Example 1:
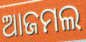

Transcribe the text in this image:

ଆଜମଲ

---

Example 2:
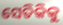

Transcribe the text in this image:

ସେତିକିକୁ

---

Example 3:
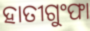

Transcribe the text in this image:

ହାତୀଗୁଂଫା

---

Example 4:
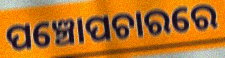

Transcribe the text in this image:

ପଞ୍ଚୋପଚାରରେ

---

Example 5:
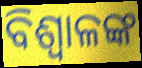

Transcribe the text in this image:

ବିଶ୍ୱାଳଙ୍କ